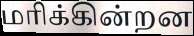
மரிக்கின்றன